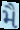
મૈ